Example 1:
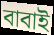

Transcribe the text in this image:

বাবাই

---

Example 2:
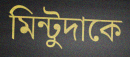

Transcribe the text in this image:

মিন্টুদাকে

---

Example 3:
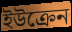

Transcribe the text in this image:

ইউক্রেন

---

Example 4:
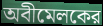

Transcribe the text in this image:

অবীমেলকের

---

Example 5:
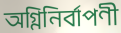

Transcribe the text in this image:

অগ্নিনির্বাপণী